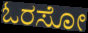
ಓರಸೋ